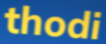
thodi